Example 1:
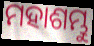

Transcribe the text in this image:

ମହାଶମ୍ଭୁ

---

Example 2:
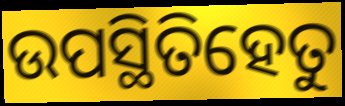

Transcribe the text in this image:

ଉପସ୍ଥିତିହେତୁ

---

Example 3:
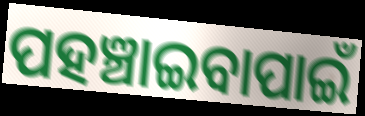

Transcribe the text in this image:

ପହଞ୍ଚାଇବାପାଇଁ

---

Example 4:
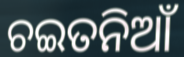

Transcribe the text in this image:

ଚଇତନିଆଁ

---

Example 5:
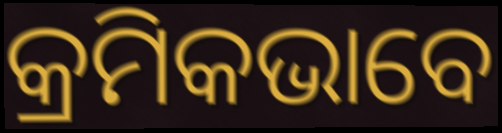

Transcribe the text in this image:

କ୍ରମିକଭାବେ